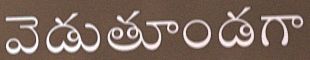
వెడుతూండగా